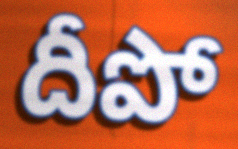
దీపో